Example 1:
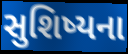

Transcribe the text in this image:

સુશિષ્યના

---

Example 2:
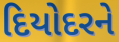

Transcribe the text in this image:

દિયોદરને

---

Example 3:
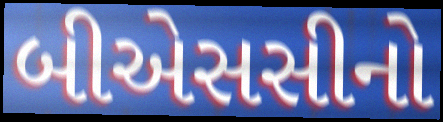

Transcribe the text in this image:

બીએસસીનો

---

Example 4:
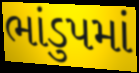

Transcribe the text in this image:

ભાંડુપમાં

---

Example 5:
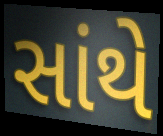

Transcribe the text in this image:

સાંથે